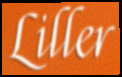
Liller